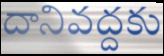
దానివద్దకు